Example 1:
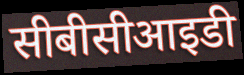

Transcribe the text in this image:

सीबीसीआइडी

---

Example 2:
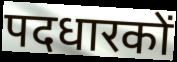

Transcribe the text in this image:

पदधारकों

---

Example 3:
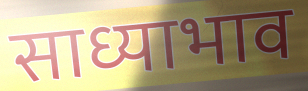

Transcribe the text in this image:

साध्याभाव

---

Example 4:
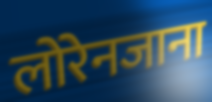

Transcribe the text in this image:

लोरेनजाना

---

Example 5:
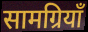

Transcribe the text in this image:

सामग्रियाँ